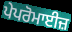
ਪੇਪਰੋਮਾਈਜ਼